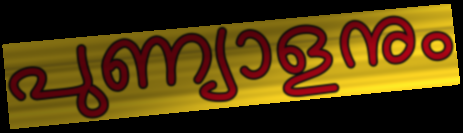
പുണ്യാളനും